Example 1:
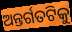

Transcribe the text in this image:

ଅନ୍ତର୍ଗତଟିକୁ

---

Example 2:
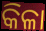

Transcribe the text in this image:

କିଳା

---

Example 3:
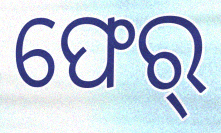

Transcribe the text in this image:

ଫେର୍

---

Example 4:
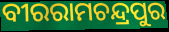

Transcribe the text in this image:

ବୀରରାମଚନ୍ଦ୍ରପୁର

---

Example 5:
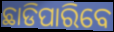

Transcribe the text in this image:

ଛାଡିପାରିବେ